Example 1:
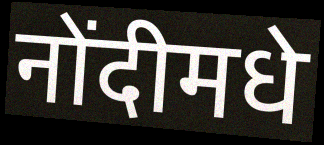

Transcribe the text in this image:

नोंदीमधे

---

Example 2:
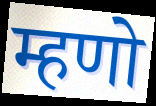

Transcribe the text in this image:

म्हणो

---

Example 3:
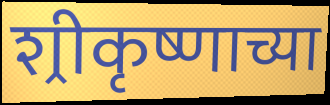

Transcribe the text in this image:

श्रीकृष्णाच्या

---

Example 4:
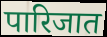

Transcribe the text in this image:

पारिजात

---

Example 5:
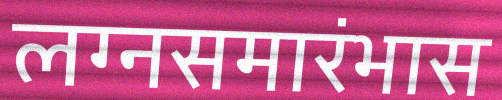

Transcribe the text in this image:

लग्नसमारंभास